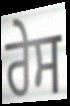
ਰੇਸ